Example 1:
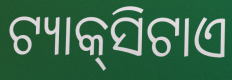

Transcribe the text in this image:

ଟ୍ୟାକ୍‌ସିଟାଏ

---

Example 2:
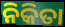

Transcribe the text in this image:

ନିକିତା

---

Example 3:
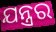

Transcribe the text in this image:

ଯନ୍ତ୍ରର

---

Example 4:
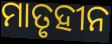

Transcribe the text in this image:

ମାତୃହୀନ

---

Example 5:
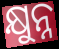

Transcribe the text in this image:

କ୍ଷୁନ୍ନ